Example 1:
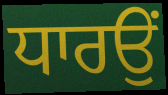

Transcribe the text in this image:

ਧਾਰਉਂ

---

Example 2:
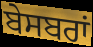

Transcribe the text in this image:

ਬੇਸਬਰਾਂ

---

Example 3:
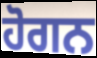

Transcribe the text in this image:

ਹੋਗਨ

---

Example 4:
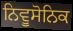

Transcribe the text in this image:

ਨਿਵੂਸੋਨਿਕ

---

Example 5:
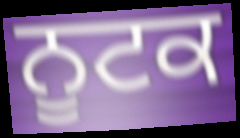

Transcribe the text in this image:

ਨੂਟਕ